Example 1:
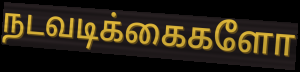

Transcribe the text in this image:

நடவடிக்கைகளோ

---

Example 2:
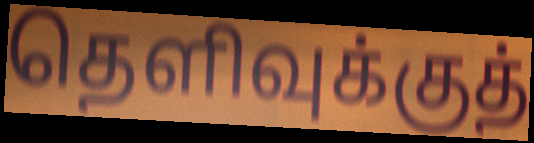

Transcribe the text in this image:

தெளிவுக்குத்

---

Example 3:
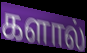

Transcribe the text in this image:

களால்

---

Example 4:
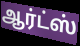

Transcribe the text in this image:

ஆர்ட்ஸ்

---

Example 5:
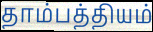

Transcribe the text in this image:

தாம்பத்தியம்